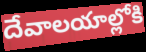
దేవాలయాల్లోకి